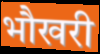
भौखरी